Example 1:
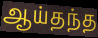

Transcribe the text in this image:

ஆய்தந்த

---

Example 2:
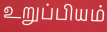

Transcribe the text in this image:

உறுப்பியம்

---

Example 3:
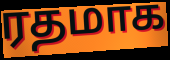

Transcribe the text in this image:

ரதமாக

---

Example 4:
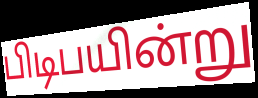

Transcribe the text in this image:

பிடிபயின்று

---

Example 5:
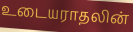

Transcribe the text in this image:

உடையராதலின்